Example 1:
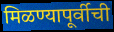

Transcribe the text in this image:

मिळण्यापूर्वीची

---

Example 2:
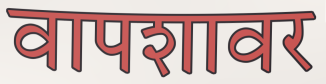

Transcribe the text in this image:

वापशावर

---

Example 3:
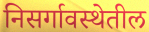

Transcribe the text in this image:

निसर्गावस्थेतील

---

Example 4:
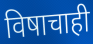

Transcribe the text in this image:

विषाचाही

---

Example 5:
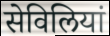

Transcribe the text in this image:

सेविलियां